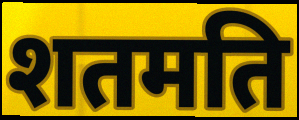
शतमति